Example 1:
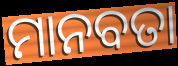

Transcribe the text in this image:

ମାନବତା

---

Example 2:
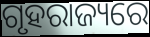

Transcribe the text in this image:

ଗୃହରାଜ୍ୟରେ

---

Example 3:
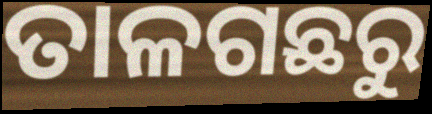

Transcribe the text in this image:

ତାଳଗଛରୁ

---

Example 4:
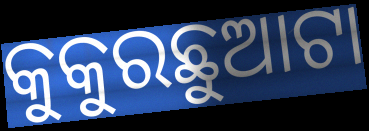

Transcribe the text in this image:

କୁକୁରଛୁଆଟା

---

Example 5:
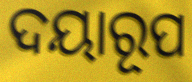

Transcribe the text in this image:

ଦୟାରୂପ